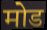
मोड